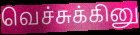
வெச்சுக்கினு